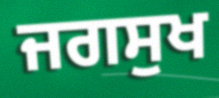
ਜਗਸੁਖ